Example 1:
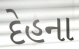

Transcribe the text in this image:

દેહના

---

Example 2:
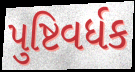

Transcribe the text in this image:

પુષ્ટિવર્ધક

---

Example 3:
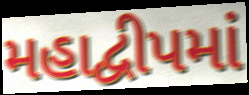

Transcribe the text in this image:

મહાદ્વીપમાં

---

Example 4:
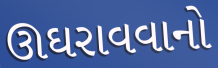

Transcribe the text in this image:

ઊઘરાવવાનો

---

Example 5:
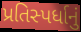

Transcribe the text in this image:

પ્રતિસ્પર્ધાનું